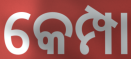
କେମ୍ପା